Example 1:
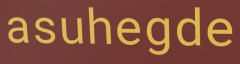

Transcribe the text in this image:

asuhegde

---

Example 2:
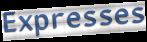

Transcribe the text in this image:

Expresses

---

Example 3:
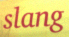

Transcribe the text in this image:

slang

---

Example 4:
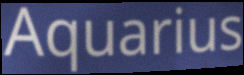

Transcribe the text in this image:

Aquarius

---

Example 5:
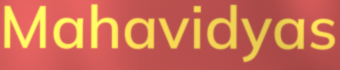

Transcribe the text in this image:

Mahavidyas